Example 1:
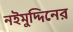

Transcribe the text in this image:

নইমুদ্দিনের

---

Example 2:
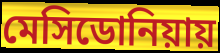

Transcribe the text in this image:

মেসিডোনিয়ায়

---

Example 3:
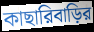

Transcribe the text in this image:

কাছারিবাড়ির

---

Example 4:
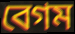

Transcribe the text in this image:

বেগম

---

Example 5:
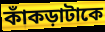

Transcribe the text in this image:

কাঁকড়াটাকে